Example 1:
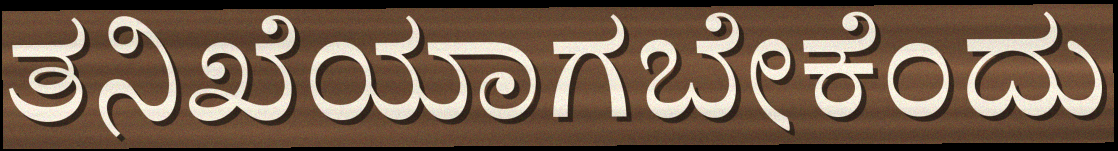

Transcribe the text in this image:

ತನಿಖೆಯಾಗಬೇಕೆಂದು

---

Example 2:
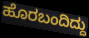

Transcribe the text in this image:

ಹೊರಬಂದಿದ್ದು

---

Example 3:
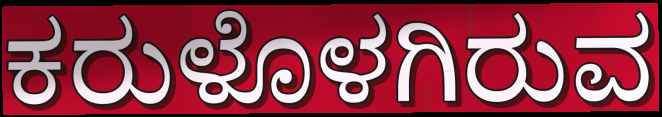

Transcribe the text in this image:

ಕರುಳೊಳಗಿರುವ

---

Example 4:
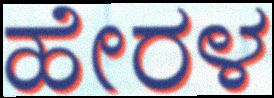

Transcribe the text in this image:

ಹೇರಳ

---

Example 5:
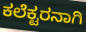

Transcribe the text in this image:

ಕಲೆಕ್ಟರನಾಗಿ